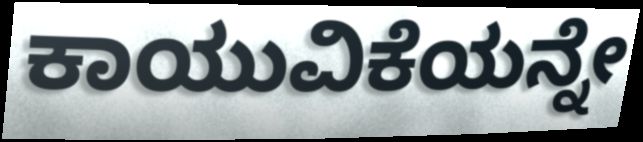
ಕಾಯುವಿಕೆಯನ್ನೇ